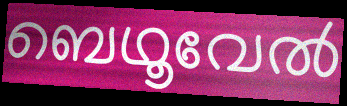
ബെഥൂവേൽ